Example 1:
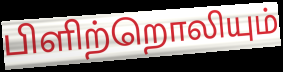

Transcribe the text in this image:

பிளிற்றொலியும்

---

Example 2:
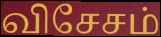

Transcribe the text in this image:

விசேசம்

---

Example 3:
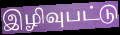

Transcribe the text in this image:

இழிவுபட்டு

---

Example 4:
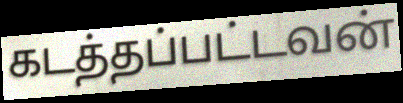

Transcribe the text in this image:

கடத்தப்பட்டவன்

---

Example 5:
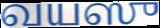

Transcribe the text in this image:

வயஸு